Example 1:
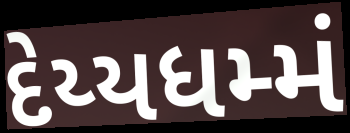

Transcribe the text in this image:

દેય્યધમ્મં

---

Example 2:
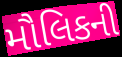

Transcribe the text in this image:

મૌલિકની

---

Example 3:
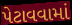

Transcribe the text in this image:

પેટાવવામાં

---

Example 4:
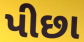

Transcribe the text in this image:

પીછા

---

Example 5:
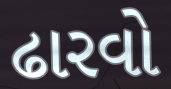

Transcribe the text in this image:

ઢારવો